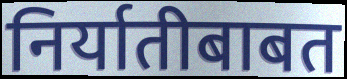
निर्यातीबाबत